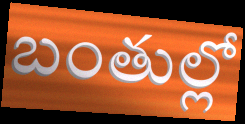
బంతుల్లో